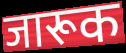
जारूक